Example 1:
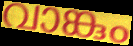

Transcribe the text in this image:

വാങ്കും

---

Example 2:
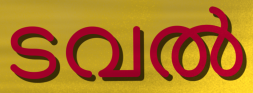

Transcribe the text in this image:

ടവൽ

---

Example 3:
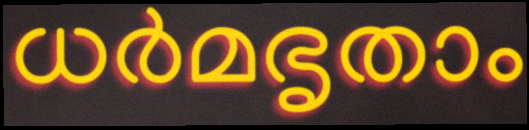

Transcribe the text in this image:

ധർമഭൃതാം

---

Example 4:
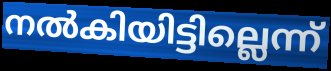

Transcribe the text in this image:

നൽകിയിട്ടില്ലെന്ന്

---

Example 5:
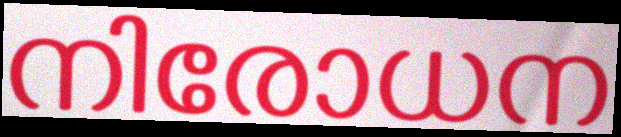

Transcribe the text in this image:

നിരോധന